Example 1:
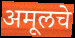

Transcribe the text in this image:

अमूलचे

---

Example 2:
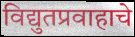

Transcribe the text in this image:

विद्युतप्रवाहाचे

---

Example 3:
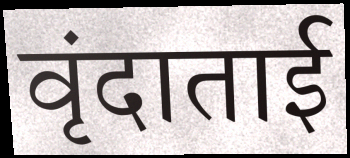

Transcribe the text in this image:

वृंदाताई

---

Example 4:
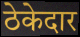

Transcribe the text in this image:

ठेकेदार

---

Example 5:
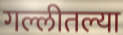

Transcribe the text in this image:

गल्लीतल्या